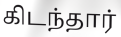
கிடந்தார்